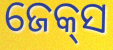
ଜେକ୍‍ସ